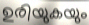
ഉരിയുകയും